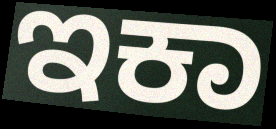
ಇಕಾ